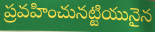
ప్రవహించునట్టియునైన